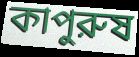
কাপুরুষ